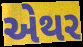
એથર